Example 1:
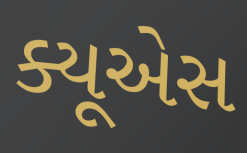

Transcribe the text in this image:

ક્યૂએસ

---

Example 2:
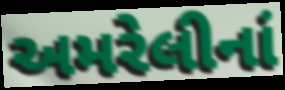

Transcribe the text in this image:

અમરેલીનાં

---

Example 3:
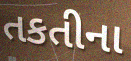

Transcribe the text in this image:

તકતીના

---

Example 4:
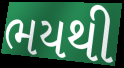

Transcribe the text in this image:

ભયથી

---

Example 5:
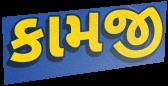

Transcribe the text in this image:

કામજી